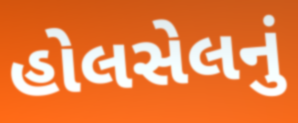
હોલસેલનું